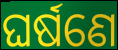
ଘର୍ଷଣେ